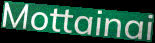
Mottainai